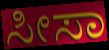
ಸೀಸಾ